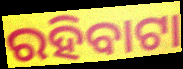
ରହିବାଟା